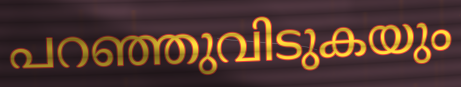
പറഞ്ഞുവിടുകയും